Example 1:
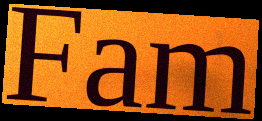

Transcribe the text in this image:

Fam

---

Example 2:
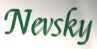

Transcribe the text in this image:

Nevsky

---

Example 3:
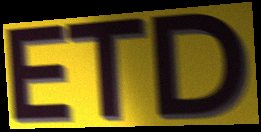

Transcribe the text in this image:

ETD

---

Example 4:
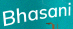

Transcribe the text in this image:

Bhasani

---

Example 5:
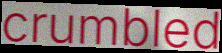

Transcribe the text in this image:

crumbled